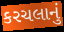
કરચલાનું